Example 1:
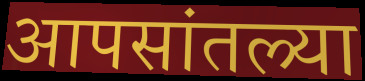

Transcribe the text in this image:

आपसांतल्या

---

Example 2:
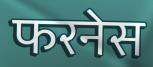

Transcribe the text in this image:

फरनेस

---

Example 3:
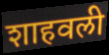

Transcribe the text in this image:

शाहवली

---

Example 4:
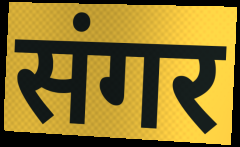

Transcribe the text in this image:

संगर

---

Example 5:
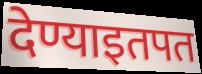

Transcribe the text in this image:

देण्याइतपत